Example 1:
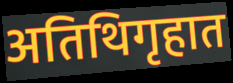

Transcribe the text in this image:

अतिथिगृहात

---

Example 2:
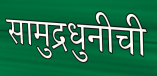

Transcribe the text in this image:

सामुद्रधुनीची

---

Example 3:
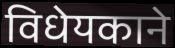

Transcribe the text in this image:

विधेयकाने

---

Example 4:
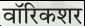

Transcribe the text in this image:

वॉरिकशर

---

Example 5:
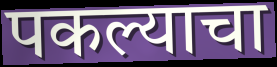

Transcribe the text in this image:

पकल्याचा